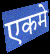
एकमे